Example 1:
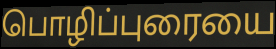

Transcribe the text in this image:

பொழிப்புரையை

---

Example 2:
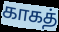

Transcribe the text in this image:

காகத்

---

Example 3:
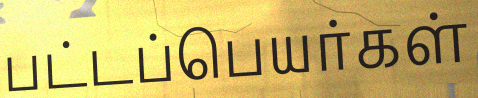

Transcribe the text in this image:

பட்டப்பெயர்கள்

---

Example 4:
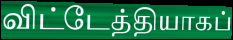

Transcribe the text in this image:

விட்டேத்தியாகப்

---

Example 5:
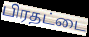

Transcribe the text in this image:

பிரதட்டை